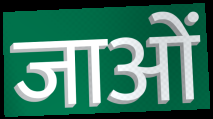
जाओं